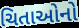
ચિતાઓનો